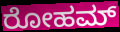
ರೋಹಮ್